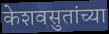
केशवसुतांच्या